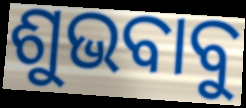
ଶୁଭବାବୁ